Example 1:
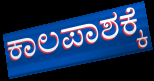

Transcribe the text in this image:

ಕಾಲಪಾಶಕ್ಕೆ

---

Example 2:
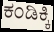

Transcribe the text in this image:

ಕಂಡಿಕ್ಕಿ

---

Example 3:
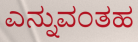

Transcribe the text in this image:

ಎನ್ನುವಂತಹ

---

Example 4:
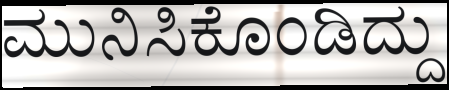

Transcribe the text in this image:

ಮುನಿಸಿಕೊಂಡಿದ್ದು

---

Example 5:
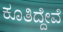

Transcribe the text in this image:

ಕೂತಿದ್ದೇವೆ